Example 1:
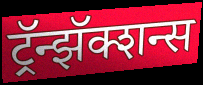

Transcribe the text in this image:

ट्रॅन्झॅक्शन्स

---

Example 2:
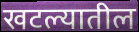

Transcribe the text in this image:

खटल्यातील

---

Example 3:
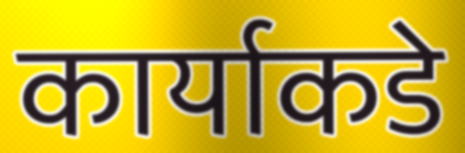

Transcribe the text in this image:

कार्याकडे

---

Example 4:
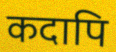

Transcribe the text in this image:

कदापि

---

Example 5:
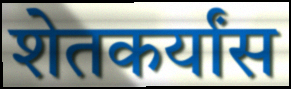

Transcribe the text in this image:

शेतकर्यांस